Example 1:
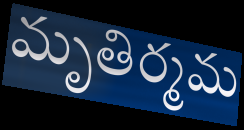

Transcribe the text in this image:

మృతిర్మమ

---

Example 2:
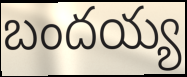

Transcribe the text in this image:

బందయ్య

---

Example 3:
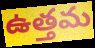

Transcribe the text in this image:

ఉత్తమ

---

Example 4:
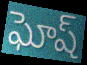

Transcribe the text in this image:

ఘోష్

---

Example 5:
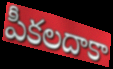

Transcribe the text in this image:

పీకలదాకా